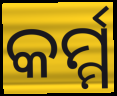
କର୍ମ୍ମ